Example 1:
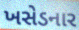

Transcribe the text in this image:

ખસેડનાર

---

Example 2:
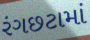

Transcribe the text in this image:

રંગછટામાં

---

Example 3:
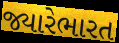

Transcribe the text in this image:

જ્યારેભારત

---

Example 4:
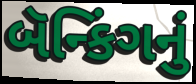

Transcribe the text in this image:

બૅન્કિંગનું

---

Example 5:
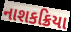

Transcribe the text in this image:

નાશકક્રિયા